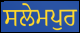
ਸਲੇਮਪੁਰ